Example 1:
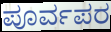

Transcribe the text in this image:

ಪೂರ್ವಪರ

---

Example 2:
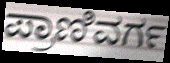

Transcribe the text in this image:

ಪ್ರಾಣಿವರ್ಗ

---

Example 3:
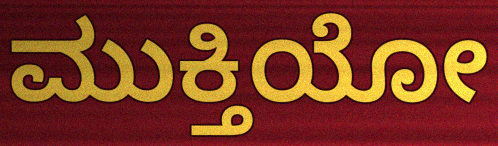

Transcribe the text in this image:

ಮುಕ್ತಿಯೋ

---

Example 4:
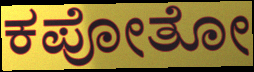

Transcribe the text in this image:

ಕಪೋತೋ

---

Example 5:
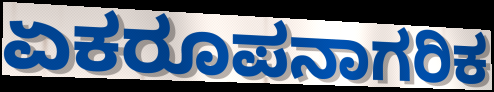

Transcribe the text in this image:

ಏಕರೂಪನಾಗರಿಕ